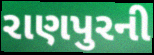
રાણપુરની